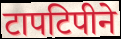
टापटिपीने